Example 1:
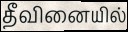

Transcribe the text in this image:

தீவினையில்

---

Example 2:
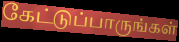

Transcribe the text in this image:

கேட்டுப்பாருங்கள்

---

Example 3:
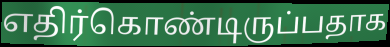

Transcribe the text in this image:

எதிர்கொண்டிருப்பதாக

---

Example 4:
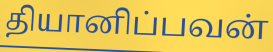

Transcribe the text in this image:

தியானிப்பவன்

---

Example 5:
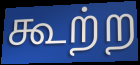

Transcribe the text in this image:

கூற்ற